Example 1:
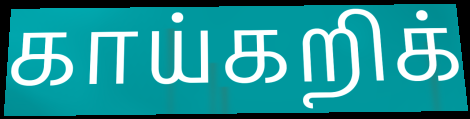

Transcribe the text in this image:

காய்கறிக்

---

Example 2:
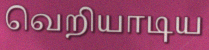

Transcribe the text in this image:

வெறியாடிய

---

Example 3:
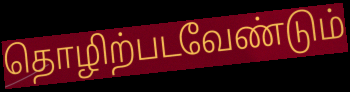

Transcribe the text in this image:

தொழிற்படவேண்டும்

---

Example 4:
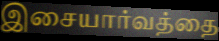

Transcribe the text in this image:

இசையார்வத்தை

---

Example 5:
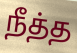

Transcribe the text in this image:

நீத்த